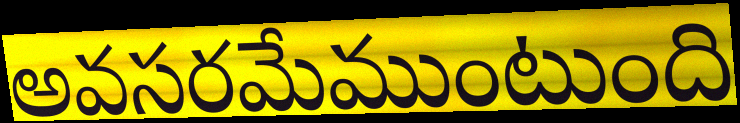
అవసరమేముంటుంది